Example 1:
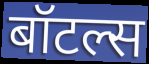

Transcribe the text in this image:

बॉटल्स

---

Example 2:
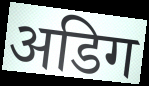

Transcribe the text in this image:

अडिग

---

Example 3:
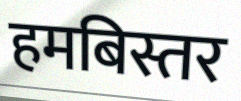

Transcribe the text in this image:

हमबिस्तर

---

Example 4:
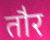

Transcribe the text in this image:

तौर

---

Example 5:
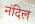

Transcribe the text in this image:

नंदिल